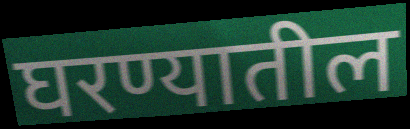
घरण्यातील